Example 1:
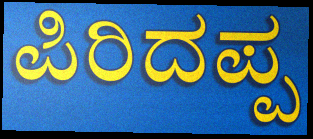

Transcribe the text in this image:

ಪಿರಿದಪ್ಪ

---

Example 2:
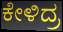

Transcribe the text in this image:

ಕೇಳಿದ್ರ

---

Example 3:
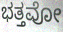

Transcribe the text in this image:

ಭತ್ತವೋ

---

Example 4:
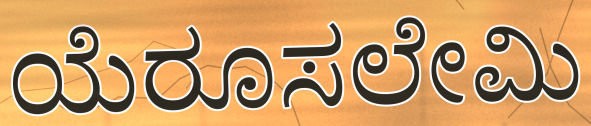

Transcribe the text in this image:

ಯೆರೂಸಲೇಮಿ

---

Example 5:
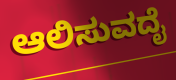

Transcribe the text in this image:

ಆಲಿಸುವದೈ